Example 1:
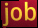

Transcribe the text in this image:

job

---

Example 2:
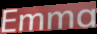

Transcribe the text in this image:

Emma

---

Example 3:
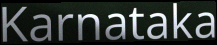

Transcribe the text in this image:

Karnataka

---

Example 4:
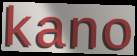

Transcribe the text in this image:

kano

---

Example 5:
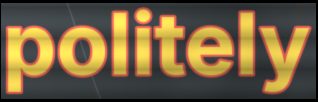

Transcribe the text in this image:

politely